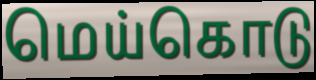
மெய்கொடு